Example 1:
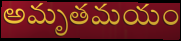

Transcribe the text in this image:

అమృతమయం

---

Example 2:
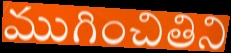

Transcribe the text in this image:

ముగించితిని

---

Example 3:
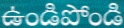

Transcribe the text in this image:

ఉండిపోండి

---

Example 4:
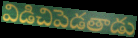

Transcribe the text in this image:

విడిచిపెడతాడు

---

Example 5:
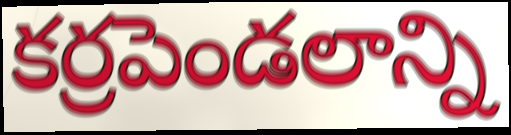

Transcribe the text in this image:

కర్రపెండలాన్ని